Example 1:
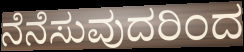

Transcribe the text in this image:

ನೆನೆಸುವುದರಿಂದ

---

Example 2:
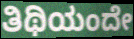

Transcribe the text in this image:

ತಿಥಿಯಂದೇ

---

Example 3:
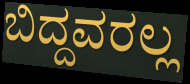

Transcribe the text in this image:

ಬಿದ್ದವರಲ್ಲ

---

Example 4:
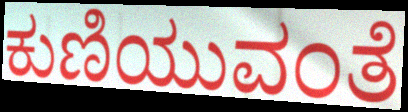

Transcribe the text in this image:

ಕುಣಿಯುವಂತೆ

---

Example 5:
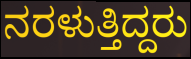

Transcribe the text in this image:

ನರಳುತ್ತಿದ್ದರು